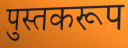
पुस्तकरूप